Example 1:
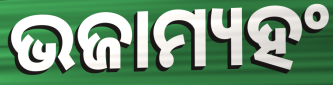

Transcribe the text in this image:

ଭଜାମ୍ୟହଂ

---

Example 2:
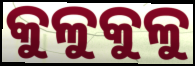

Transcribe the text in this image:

କୁଳୁକୁଳୁ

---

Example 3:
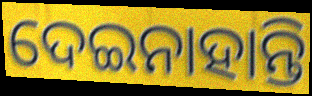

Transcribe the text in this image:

ଦେଇନାହାନ୍ତି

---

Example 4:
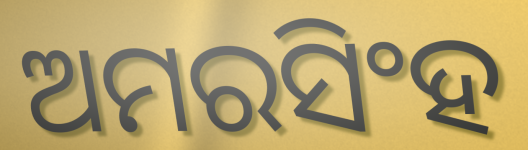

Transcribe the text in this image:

ଅମରସିଂହ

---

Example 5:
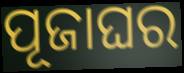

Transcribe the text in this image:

ପୂଜାଘର